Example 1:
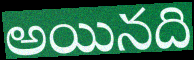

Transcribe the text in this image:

అయినది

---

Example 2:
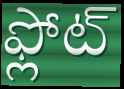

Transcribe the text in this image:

ఫ్లోట్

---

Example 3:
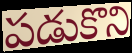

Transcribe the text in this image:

పడుకొని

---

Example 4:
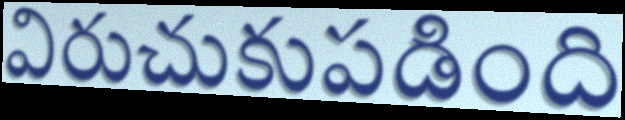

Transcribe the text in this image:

విరుచుకుపడింది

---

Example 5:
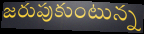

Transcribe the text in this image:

జరుపుకుంటున్న